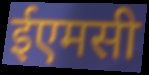
ईएमसी